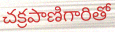
చక్రపాణిగారితో